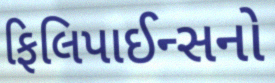
ફિલિપાઈન્સનો